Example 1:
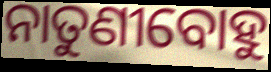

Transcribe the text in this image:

ନାତୁଣୀବୋହୁ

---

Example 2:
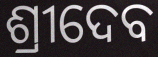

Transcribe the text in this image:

ଶ୍ରୀଦେବ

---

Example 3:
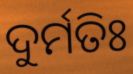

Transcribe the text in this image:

ଦୁର୍ମତିଃ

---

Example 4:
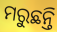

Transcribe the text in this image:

ମରୁଛନ୍ତି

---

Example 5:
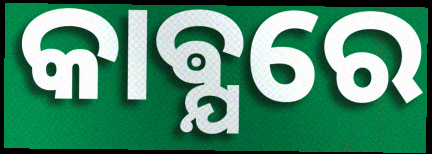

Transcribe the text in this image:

କାଵ୍ଯରେ